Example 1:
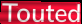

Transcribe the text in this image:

Touted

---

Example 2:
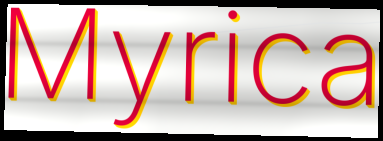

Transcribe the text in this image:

Myrica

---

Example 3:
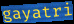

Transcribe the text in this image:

gayatri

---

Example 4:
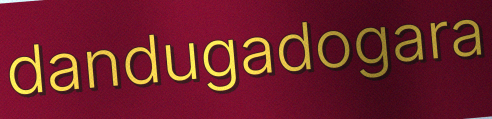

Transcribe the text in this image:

dandugadogara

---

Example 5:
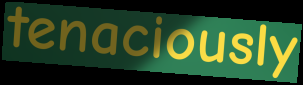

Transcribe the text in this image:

tenaciously